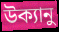
উক্যানু